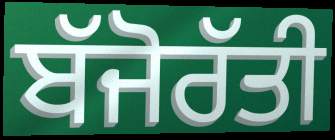
ਬੱਜੋਰੱਤੀ